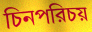
চিনপরিচয়